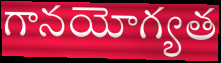
గానయోగ్యత